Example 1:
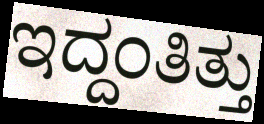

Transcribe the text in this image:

ಇದ್ದಂತಿತ್ತು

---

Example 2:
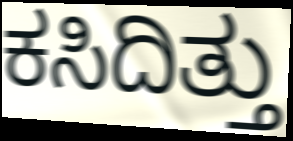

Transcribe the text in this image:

ಕಸಿದಿತ್ತು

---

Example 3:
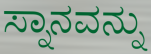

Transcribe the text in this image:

ಸ್ನಾನವನ್ನು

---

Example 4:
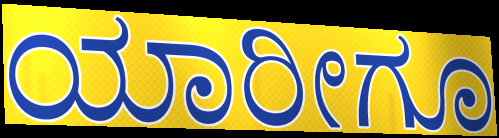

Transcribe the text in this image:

ಯಾರೀಗೂ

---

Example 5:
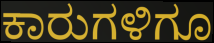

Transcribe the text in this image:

ಕಾರುಗಳಿಗೂ